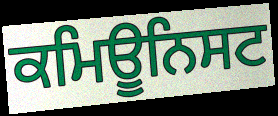
ਕਮਿਊਨਿਸਟ